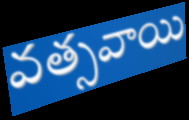
వత్సవాయి